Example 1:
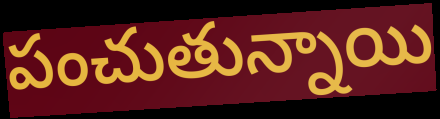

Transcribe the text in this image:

పంచుతున్నాయి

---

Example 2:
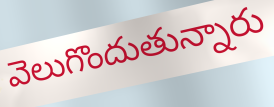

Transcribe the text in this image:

వెలుగొందుతున్నారు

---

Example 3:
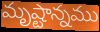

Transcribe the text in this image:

మృష్టాన్నము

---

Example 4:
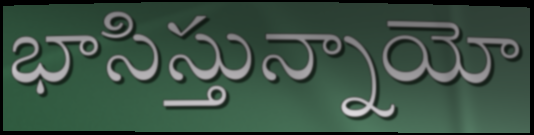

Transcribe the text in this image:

భాసిస్తున్నాయో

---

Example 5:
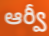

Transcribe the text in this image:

ఆర్వీ